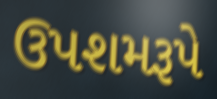
ઉપશમરૂપે